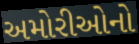
અમોરીઓનો